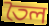
তৈল